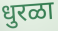
धुरळा